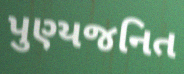
પુણ્યજનિત